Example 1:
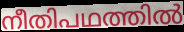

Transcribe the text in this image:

നീതിപഥത്തിൽ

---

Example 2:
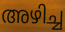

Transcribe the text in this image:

അഴിച്ച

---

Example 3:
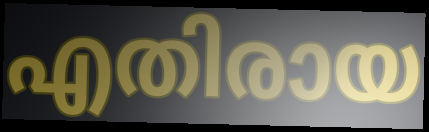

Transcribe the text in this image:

എതിരായ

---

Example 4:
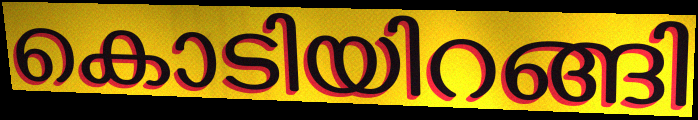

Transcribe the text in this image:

കൊടിയിറങ്ങി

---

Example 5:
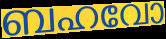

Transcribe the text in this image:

ബഹവോ